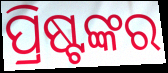
ପ୍ରିଷ୍ଟଙ୍କର